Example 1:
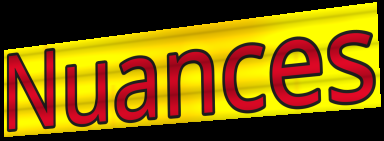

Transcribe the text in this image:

Nuances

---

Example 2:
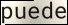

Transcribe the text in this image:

puede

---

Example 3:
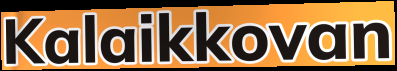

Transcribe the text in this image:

Kalaikkovan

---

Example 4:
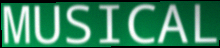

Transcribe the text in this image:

MUSICAL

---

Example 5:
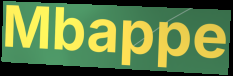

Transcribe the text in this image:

Mbappe